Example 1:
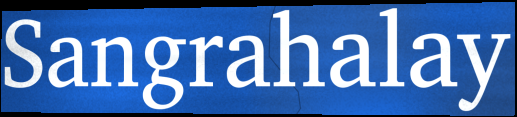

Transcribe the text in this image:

Sangrahalay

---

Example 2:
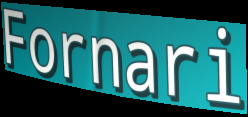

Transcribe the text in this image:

Fornari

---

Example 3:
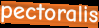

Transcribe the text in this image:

pectoralis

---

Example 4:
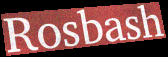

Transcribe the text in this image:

Rosbash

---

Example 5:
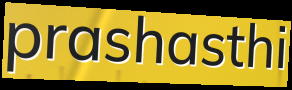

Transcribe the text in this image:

prashasthi